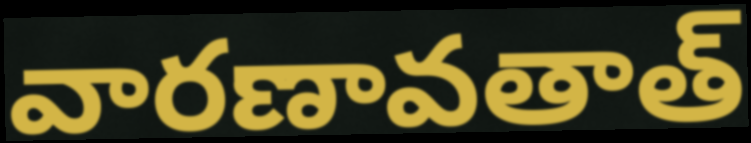
వారణావతాత్